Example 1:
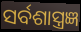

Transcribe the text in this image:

ସର୍ବଶାସ୍ତ୍ରଜ୍ଞ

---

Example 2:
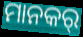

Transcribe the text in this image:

ମାନକର୍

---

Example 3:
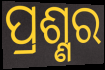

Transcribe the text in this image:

ପ୍ରଶ୍ଣର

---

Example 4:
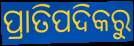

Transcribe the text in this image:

ପ୍ରାତିପଦିକରୁ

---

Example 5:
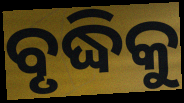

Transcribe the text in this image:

ବୃଦ୍ଧିକୁ